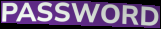
PASSWORD